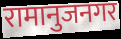
रामानुजनगर